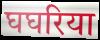
घघरिया